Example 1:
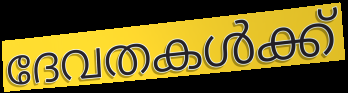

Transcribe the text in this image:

ദേവതകൾക്ക്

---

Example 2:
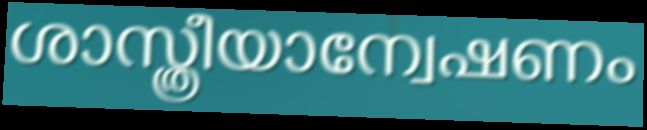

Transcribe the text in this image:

ശാസ്ത്രീയാന്വേഷണം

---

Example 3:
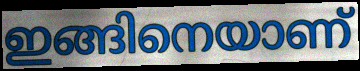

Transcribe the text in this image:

ഇങ്ങിനെയാണ്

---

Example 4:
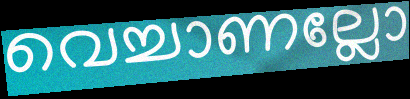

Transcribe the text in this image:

വെച്ചാണല്ലോ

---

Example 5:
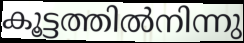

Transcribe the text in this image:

കൂട്ടത്തിൽനിന്നു